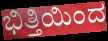
ಭಿತ್ತಿಯಿಂದ